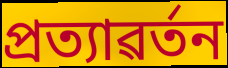
প্ৰত্যাৱৰ্তন